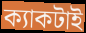
ক্যাকটাই